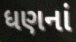
ધણનાં